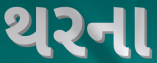
થરના